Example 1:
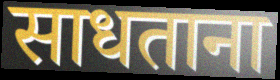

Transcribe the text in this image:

साधताना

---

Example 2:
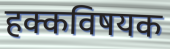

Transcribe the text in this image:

हक्कविषयक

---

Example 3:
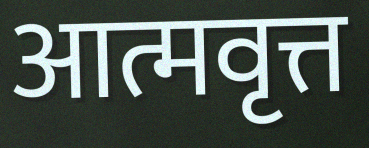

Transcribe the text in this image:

आत्मवृत्त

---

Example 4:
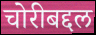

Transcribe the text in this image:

चोरीबद्दल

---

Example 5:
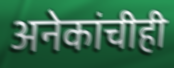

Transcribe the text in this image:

अनेकांचीही